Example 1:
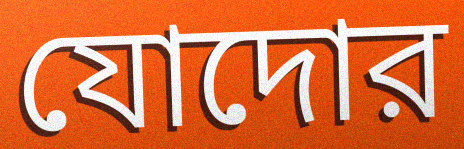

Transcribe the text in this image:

যোদোর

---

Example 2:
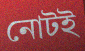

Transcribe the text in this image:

নোটই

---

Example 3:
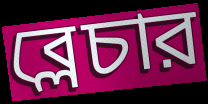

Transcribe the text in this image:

ব্লেচার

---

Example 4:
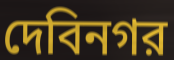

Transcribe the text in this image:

দেবিনগর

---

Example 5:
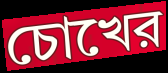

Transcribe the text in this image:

চোখের